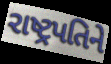
રાષ્ટ્રપતિને